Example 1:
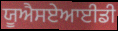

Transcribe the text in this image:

ਯੂਐਸਏਆਈਡੀ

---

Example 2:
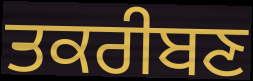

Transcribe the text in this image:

ਤਕਰੀਬਣ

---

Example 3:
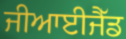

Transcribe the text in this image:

ਜੀਆਈਜੈੱਡ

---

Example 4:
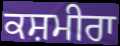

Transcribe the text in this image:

ਕਸ਼ਮੀਰਾ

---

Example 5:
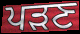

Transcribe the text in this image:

ਪੜਣ